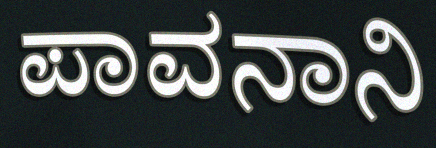
ಪಾವನಾನಿ